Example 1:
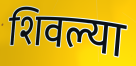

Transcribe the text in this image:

शिवल्या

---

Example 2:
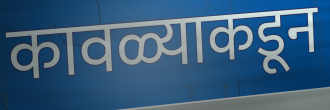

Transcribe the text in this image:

कावळ्याकडून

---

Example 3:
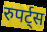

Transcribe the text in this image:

रुपर्ट्स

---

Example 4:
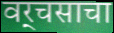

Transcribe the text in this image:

वर्चसाचा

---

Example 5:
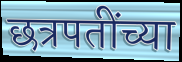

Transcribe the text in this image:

छत्रपतींच्या